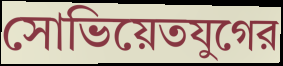
সোভিয়েতযুগের